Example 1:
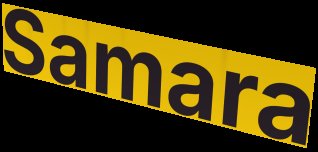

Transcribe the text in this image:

Samara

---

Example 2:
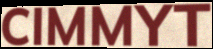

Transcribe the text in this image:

CIMMYT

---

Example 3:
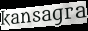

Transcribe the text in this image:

kansagra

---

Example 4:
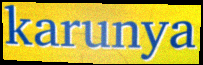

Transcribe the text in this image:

karunya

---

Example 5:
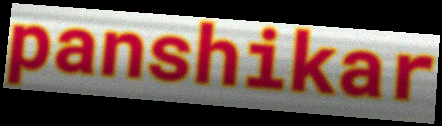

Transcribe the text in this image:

panshikar